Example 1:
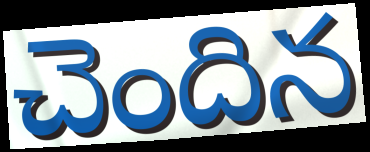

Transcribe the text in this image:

చెందిన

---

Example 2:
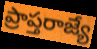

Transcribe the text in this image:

ప్రాప్తరాజ్యే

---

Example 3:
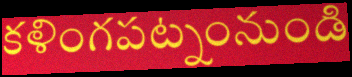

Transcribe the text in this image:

కళింగపట్నంనుండి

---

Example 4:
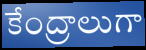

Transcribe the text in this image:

కేంద్రాలుగా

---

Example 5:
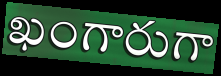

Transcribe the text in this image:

ఖంగారుగా